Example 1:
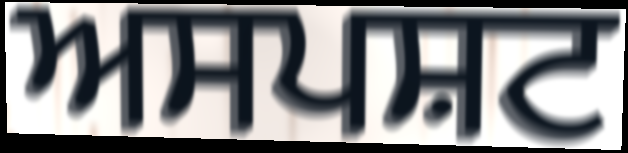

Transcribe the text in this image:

ਅਸਪਸ਼ਟ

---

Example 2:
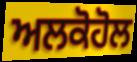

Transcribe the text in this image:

ਅਲਕੋਹੋਲ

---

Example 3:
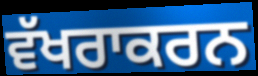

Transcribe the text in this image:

ਵੱਖਰਾਕਰਨ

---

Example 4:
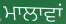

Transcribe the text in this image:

ਮਾਲਾਵਾਂ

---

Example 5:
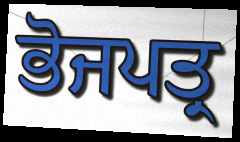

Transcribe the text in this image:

ਭੋਜਪਤ੍ਰ